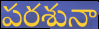
పరశునా